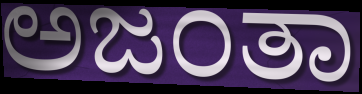
ಅಜಂತಾ